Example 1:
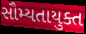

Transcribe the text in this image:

સૌમ્યતાયુક્ત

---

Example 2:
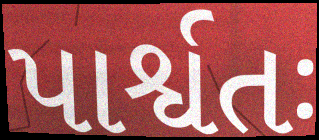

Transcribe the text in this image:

પાર્શ્વતઃ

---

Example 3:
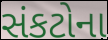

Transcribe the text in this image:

સંકટોના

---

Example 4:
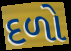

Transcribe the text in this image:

દળો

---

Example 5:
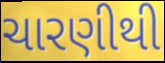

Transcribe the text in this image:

ચારણીથી